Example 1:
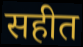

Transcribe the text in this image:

सहीत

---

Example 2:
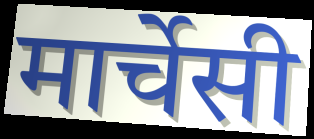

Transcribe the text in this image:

मार्चेसी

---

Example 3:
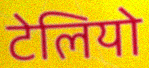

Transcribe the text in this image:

टेलियो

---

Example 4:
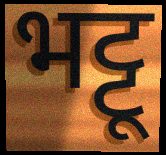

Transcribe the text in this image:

भट्टू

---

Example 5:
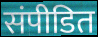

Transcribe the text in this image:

संपीडित